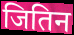
जितिन